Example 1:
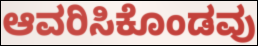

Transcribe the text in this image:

ಆವರಿಸಿಕೊಂಡವು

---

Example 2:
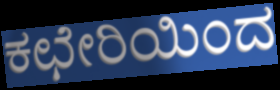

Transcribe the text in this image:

ಕಛೇರಿಯಿಂದ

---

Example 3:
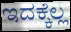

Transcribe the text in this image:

ಇದಕ್ಕೆಲ್ಲ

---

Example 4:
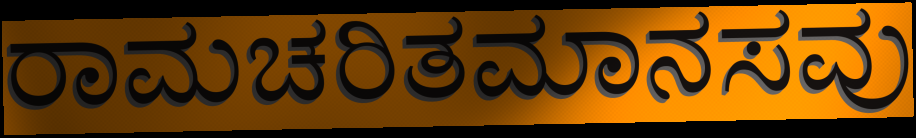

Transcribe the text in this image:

ರಾಮಚರಿತಮಾನಸವು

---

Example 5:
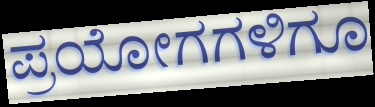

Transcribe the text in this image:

ಪ್ರಯೋಗಗಳಿಗೂ